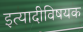
इत्यादीविषयक